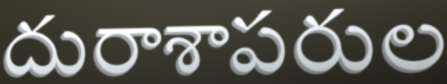
దురాశాపరుల